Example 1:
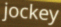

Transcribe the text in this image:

jockey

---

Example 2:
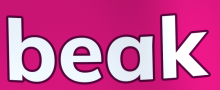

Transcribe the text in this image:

beak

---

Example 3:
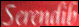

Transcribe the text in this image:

Serendib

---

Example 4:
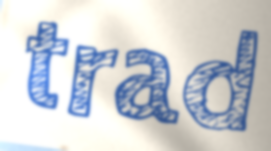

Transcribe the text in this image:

trad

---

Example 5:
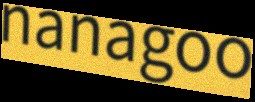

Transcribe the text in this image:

nanagoo